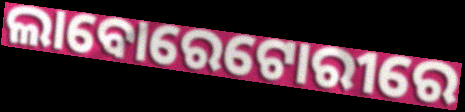
ଲାବୋରେଟୋରୀରେ